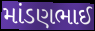
માંડણભાઈ